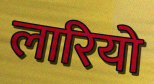
लारियो